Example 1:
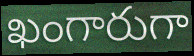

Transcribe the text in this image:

ఖంగారుగా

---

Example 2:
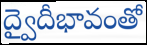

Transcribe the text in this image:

ద్వైదీభావంతో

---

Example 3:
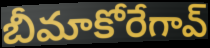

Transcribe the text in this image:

బీమాకోరేగావ్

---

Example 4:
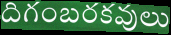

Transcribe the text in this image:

దిగంబరకవులు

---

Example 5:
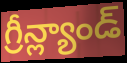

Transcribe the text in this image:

గ్రీన్ల్యాండ్